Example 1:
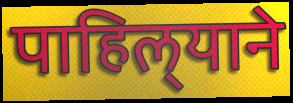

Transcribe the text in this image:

पाहिल्याने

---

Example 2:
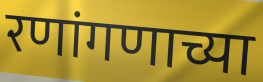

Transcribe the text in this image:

रणांगणाच्या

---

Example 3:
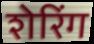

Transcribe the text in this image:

शेरिंग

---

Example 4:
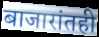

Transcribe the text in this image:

बाजारांतही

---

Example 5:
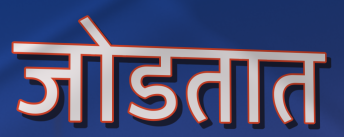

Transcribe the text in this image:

जोडतात